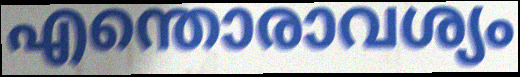
എന്തൊരാവശ്യം